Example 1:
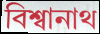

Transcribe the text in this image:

বিশ্বানাথ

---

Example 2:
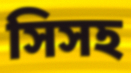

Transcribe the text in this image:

সিসহ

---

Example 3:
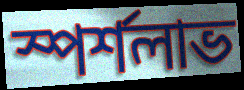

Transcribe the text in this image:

স্পর্শলাভ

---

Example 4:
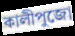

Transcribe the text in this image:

কালীপুজো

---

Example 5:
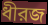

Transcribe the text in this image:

ধীরজ